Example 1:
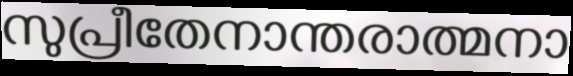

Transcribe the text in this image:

സുപ്രീതേനാന്തരാത്മനാ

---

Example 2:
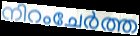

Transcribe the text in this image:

നിറംചേർത്ത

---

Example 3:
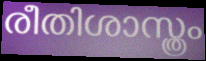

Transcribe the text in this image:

രീതിശാസ്ത്രം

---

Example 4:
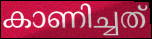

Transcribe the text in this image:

കാണിച്ചത്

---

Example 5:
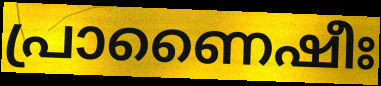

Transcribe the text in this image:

പ്രാണൈഷീഃ